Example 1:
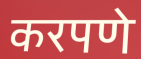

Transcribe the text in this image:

करपणे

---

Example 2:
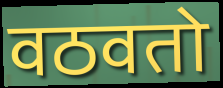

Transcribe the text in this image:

वठवतो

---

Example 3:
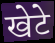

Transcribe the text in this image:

खेटे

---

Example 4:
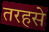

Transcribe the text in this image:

तरहसे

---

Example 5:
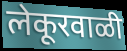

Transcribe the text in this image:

लेकूरवाळी